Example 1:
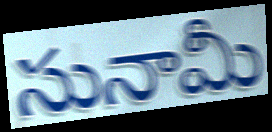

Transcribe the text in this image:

సునామీ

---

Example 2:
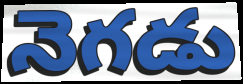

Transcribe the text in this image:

నెగడు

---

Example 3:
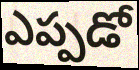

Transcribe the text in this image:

ఎప్పడో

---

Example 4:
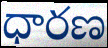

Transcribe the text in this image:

ధారణ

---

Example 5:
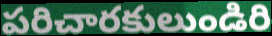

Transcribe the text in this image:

పరిచారకులుండిరి